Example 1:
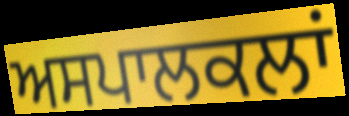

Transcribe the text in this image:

ਅਸਪਾਲਕਲਾਂ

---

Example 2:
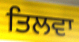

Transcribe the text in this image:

ਤਿਲਵਾ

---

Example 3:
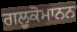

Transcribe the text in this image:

ਗਲੂਕੋਮਾਨਨ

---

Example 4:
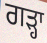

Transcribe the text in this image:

ਗੜ੍ਹਾ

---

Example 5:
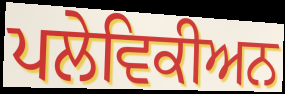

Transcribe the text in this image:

ਪਲੇਵਿਕੀਅਨ